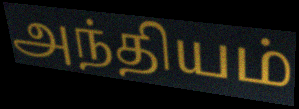
அந்தியம்